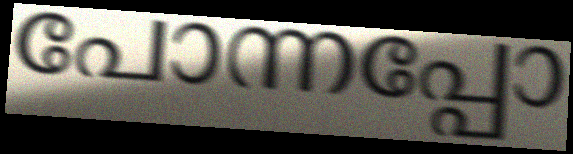
പോന്നപ്പോ